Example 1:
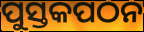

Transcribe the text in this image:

ପୁସ୍ତକପଠନ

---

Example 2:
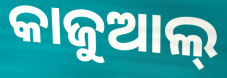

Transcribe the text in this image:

କାଜୁଆଲ୍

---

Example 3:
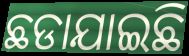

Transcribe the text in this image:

ଛଡାଯାଇଛି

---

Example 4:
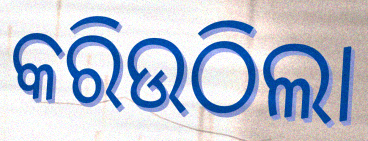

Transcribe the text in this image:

କରିଉଠିଲା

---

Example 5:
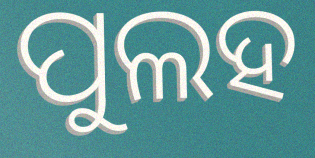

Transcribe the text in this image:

ପୁଲହ